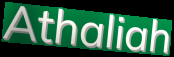
Athaliah